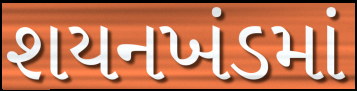
શયનખંડમાં